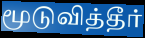
மூடுவித்தீர்